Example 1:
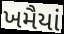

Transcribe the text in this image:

ખમૈયાં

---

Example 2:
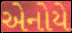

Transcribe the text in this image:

એનોયે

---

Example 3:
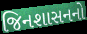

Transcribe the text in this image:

જિનશાસનનો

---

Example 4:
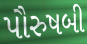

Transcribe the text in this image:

પૌરુષબી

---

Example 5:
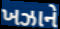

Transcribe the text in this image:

ખઝાને